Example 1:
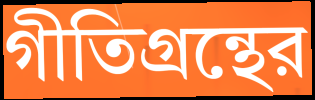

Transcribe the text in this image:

গীতিগ্রন্থের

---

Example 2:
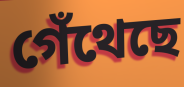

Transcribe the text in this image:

গেঁথেছে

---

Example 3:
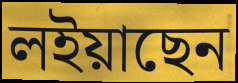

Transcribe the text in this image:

লইয়াছেন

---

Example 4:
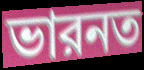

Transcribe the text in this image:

ভারনত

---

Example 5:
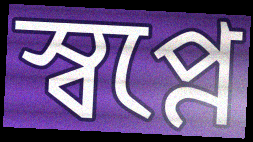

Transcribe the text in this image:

স্বপ্নে